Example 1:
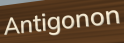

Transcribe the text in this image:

Antigonon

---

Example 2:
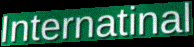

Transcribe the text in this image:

Internatinal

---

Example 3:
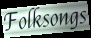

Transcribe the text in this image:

Folksongs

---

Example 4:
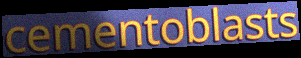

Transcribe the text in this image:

cementoblasts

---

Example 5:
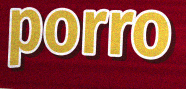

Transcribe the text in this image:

porro